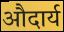
औदार्य